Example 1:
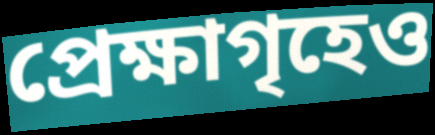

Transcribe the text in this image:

প্রেক্ষাগৃহেও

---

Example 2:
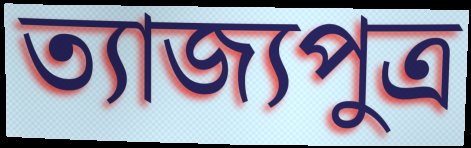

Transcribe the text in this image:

ত্যাজ্যপুত্র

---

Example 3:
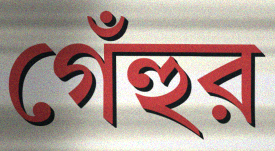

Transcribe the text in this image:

গেঁহুর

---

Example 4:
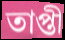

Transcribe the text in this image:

তাপ্তী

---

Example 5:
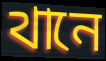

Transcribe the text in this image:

থানে